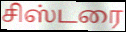
சிஸ்டரை